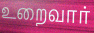
உறைவார்